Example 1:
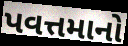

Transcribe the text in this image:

પવત્તમાનો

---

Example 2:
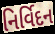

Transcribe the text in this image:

નિર્વિદન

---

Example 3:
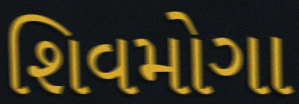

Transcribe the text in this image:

શિવમોગા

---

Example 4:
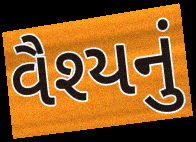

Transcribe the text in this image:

વૈશ્યનું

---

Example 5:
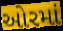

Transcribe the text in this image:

ઓરમાં